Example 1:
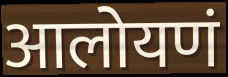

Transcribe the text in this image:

आलोयणं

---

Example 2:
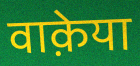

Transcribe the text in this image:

वाक़ेया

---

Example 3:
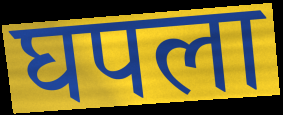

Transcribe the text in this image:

घपला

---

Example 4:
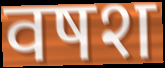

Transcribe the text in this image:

वषश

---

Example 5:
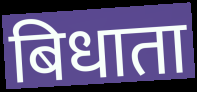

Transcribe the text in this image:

बिधाता